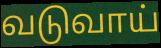
வடுவாய்